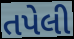
તપેલી